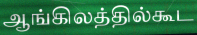
ஆங்கிலத்தில்கூட